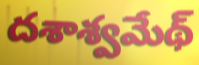
దశాశ్వమేథ్